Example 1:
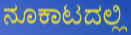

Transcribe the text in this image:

ನೂಕಾಟದಲ್ಲಿ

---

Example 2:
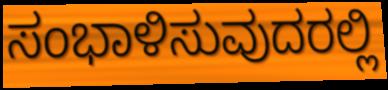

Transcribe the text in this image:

ಸಂಭಾಳಿಸುವುದರಲ್ಲಿ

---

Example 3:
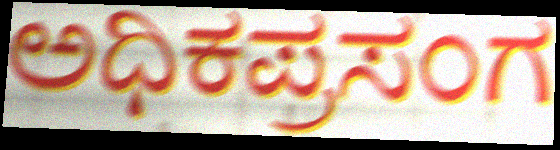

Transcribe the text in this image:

ಅಧಿಕಪ್ರಸಂಗ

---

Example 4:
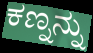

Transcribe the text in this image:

ಕಣ್ನನ್ನು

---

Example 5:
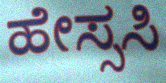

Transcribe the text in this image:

ಹೇಸ್ಸಸಿ